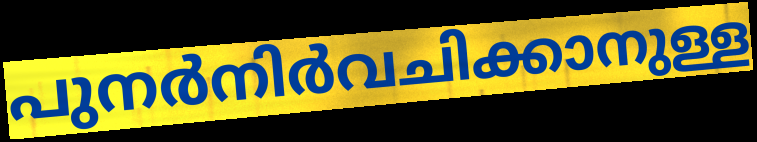
പുനർനിർവചിക്കാനുള്ള